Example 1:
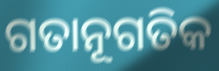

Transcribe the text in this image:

ଗତାନୂଗତିକ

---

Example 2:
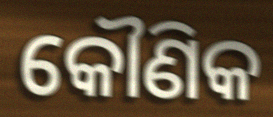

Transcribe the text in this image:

କୌଣିକ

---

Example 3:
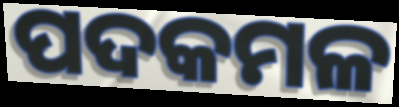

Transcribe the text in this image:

ପଦକମଳ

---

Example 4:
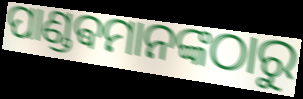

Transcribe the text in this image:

ପାଣ୍ଡଵମାନଙ୍କଠାରୁ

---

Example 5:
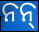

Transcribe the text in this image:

ନନ୍